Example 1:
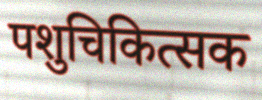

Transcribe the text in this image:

पशुचिकित्सक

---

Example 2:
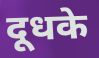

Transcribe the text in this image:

दूधके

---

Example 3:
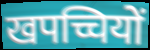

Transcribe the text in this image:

खपच्चियों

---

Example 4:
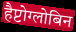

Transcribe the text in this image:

हैप्टोग्लोबिन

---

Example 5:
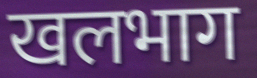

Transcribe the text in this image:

खलभाग